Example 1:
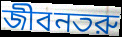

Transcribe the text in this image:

জীবনতরু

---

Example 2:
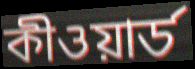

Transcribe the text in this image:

কীওয়ার্ড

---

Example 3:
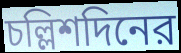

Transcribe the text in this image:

চল্লিশদিনের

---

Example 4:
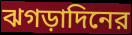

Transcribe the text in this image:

ঝগড়াদিনের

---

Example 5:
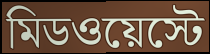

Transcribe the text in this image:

মিডওয়েস্টে